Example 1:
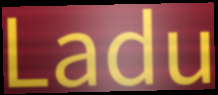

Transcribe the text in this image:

Ladu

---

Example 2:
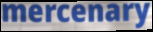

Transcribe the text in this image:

mercenary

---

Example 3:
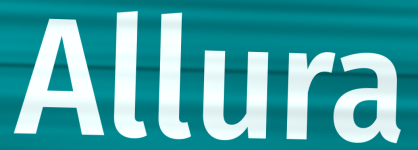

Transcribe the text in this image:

Allura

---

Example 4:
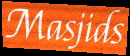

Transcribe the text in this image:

Masjids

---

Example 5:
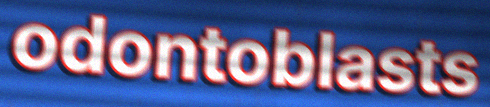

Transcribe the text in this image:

odontoblasts